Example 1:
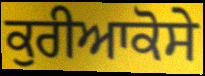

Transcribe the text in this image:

ਕੁਰੀਆਕੋਸੇ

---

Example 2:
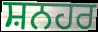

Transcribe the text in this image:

ਸ਼ਨਹਰ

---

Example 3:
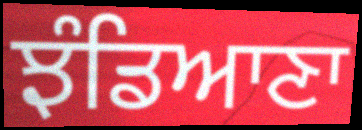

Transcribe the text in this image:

ਝੰਡਿਆਣਾ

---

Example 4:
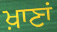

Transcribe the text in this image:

ਖ਼ਾਣਾਂ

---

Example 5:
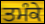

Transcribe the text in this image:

ਤਮੰਕੇ